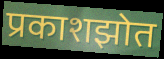
प्रकाशझोत